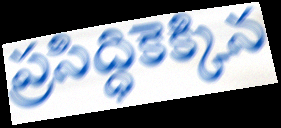
ప్రసిద్ధికెక్కిన